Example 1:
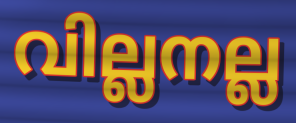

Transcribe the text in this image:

വില്ലനല്ല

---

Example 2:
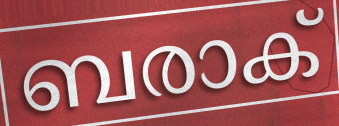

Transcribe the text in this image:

ബരാക്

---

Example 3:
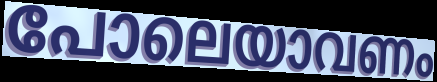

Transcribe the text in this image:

പോലെയാവണം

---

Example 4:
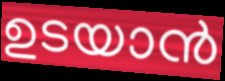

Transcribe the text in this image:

ഉടയാൻ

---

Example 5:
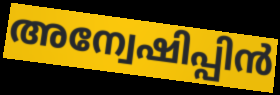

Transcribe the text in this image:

അന്വേഷിപ്പിൻ